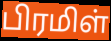
பிரமிள்